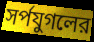
সর্পযুগলের